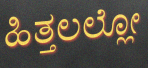
ಹಿತ್ತಲಲ್ಲೋ